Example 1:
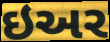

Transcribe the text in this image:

ઇઅર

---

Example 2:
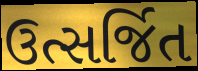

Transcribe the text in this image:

ઉત્સર્જિત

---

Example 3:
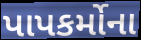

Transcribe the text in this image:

પાપકર્મોના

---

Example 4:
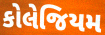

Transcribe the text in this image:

કોલેજિયમ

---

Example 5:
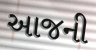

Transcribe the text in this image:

આજની